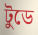
টুডে